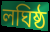
লঘিষ্ঠ